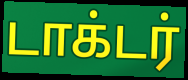
டாக்டர்